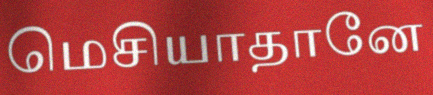
மெசியாதானே